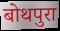
बोथपुरा